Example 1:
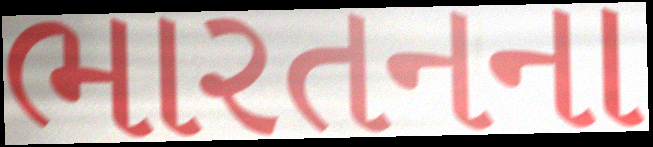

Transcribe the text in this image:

ભારતનના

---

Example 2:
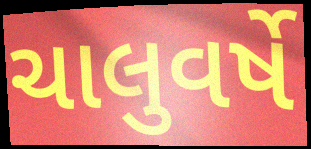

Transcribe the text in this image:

ચાલુવર્ષે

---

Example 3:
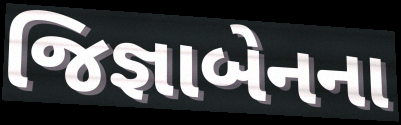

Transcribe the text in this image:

જિજ્ઞાબેનના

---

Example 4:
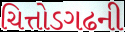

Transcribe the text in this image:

ચિત્તોડગઢની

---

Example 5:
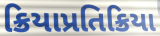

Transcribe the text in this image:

ક્રિયાપ્રતિક્રિયા